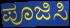
ಪೂಜಿಸಿ